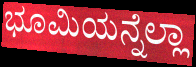
ಭೂಮಿಯನ್ನೆಲ್ಲಾ